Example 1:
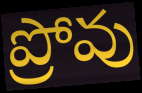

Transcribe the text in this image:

ప్రోవు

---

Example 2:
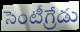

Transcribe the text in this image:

సెంటీగ్రేడు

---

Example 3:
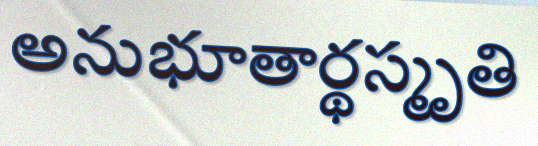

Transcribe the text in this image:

అనుభూతార్థస్మృతి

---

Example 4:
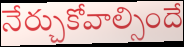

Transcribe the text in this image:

నేర్చుకోవాల్సిందే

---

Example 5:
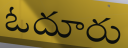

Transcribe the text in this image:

ఓదూరు